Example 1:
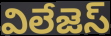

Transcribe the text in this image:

విలేజెస్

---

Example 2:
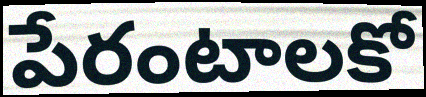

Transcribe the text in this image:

పేరంటాలకో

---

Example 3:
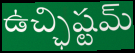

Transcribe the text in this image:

ఉచ్ఛిష్టమ్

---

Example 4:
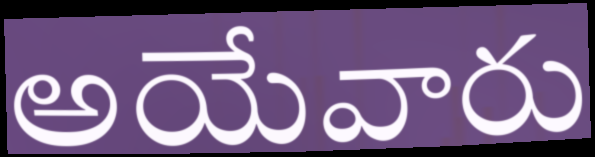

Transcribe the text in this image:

అయేవారు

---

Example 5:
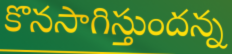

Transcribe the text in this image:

కొనసాగిస్తుందన్న